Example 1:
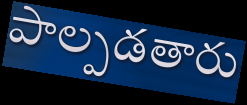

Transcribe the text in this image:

పాల్పడతారు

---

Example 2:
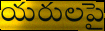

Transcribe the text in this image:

యరులపై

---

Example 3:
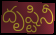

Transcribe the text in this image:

దృష్టినీ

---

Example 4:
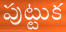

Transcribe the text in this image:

పుట్టుక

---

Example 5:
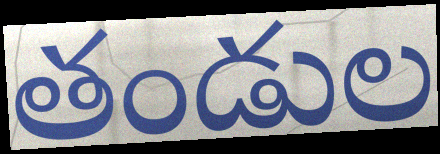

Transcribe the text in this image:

తండుల